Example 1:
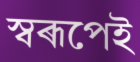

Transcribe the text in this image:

স্বৰূপেই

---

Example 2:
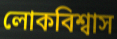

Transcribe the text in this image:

লোকবিশ্বাস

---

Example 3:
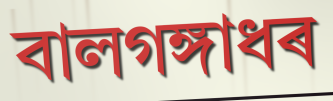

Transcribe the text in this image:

বালগঙ্গাধৰ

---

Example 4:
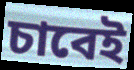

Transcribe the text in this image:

চাবেই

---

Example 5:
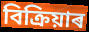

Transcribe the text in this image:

বিক্ৰিয়াৰ